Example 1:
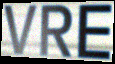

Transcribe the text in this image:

VRE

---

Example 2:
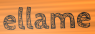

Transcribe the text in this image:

ellame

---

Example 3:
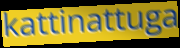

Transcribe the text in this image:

kattinattuga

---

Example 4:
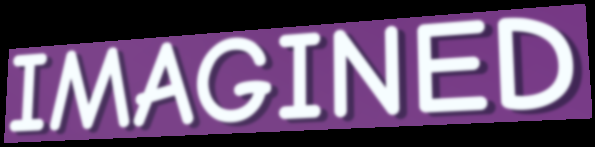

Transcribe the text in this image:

IMAGINED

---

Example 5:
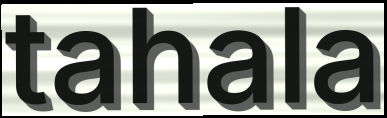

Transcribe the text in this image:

tahala